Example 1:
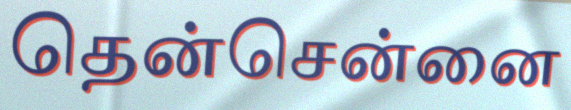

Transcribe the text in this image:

தென்சென்னை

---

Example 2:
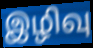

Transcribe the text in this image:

இழிவு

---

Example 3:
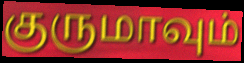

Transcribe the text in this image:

குருமாவும்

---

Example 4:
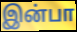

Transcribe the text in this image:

இன்பா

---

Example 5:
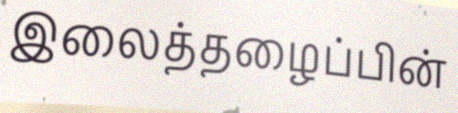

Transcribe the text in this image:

இலைத்தழைப்பின்